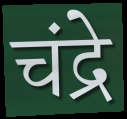
चंद्रे